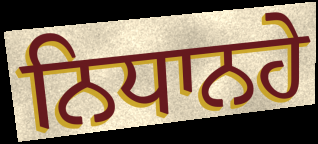
ਨਿਧਾਨਹੇ